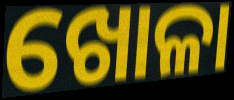
ଖୋଳା